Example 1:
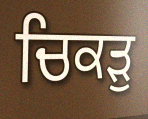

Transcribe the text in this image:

ਚਿਕੜੁ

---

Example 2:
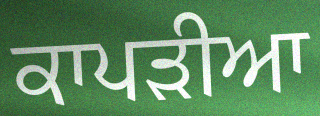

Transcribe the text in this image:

ਕਾਪੜੀਆ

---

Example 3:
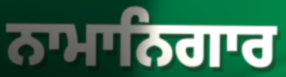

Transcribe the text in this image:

ਨਾਮਾਨਿਗਾਰ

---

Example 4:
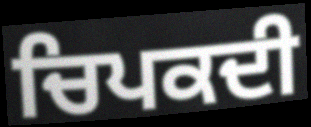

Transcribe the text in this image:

ਚਿਪਕਦੀ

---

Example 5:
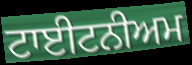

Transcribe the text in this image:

ਟਾਈਟਨੀਅਮ